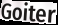
Goiter